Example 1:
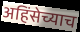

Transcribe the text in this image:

अहिंसेच्याच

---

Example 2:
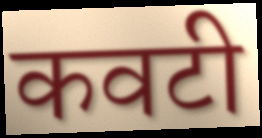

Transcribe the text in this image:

कवटी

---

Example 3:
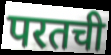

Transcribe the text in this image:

परतची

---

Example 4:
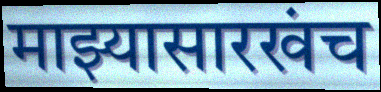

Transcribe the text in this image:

माझ्यासारखंच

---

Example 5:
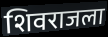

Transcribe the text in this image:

शिवराजला